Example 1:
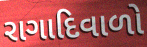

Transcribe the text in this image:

રાગાદિવાળો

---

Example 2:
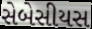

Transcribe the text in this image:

સેબેસીયસ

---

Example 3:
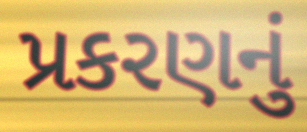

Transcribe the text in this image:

પ્રકરણનું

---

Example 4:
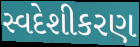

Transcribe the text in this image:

સ્વદેશીકરણ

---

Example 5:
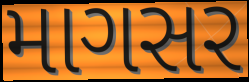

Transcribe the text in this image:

માગસર